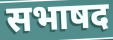
सभाषद